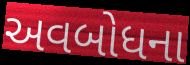
અવબોધના